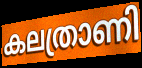
കലത്രാണി